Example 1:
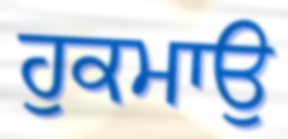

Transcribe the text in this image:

ਹੁਕਮਾਉ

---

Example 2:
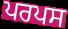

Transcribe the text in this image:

ਪਰਪਸ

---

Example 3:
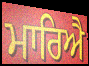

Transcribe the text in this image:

ਮਾਰਿਐ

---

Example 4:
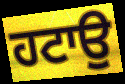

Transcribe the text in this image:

ਹਟਾਉ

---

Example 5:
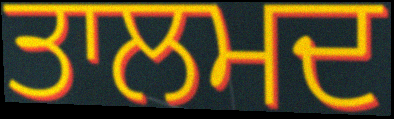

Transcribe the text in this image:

ਤਾਲਮਦ